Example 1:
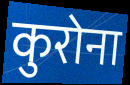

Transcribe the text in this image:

कुरोना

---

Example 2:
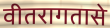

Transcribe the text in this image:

वीतरागतासे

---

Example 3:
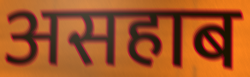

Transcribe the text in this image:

असहाब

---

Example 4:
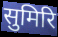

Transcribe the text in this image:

सुमिरि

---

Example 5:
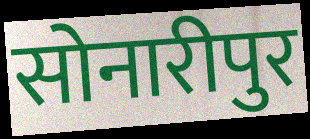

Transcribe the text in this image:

सोनारीपुर